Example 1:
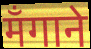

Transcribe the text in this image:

मँगाने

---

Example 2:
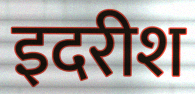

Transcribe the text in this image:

इदरीश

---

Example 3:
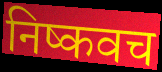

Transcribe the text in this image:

निष्कवच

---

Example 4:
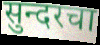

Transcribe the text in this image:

सुन्दरचा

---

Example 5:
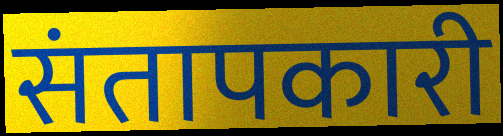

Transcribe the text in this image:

संतापकारी